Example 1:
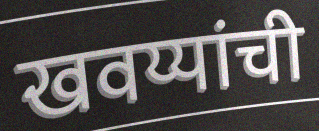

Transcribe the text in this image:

खवय्यांची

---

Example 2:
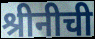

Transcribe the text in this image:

श्रीनीची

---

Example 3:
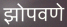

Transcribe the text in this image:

झोपवणे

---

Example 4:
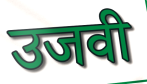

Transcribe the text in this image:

उजवी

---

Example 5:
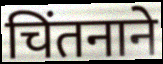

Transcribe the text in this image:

चिंतनाने